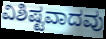
ವಿಶಿಷ್ಟವಾದವು